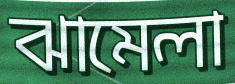
ঝামেলা